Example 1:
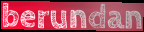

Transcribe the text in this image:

berundan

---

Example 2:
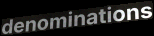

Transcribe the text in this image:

denominations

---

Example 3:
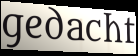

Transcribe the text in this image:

gedacht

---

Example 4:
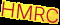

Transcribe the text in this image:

HMRC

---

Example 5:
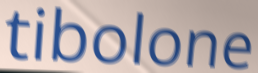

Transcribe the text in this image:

tibolone